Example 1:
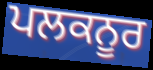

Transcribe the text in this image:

ਪਲਕਨੂਰ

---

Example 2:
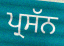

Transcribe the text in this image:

ਪ੍ਰਸੱਨ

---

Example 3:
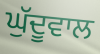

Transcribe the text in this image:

ਘੁੱਦੂਵਾਲ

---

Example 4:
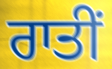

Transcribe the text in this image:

ਰਾਤੀਂ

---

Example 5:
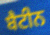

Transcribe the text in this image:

ਬੈਟੀਨ